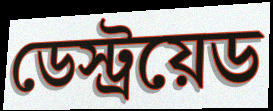
ডেস্ট্রয়েড